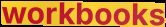
workbooks